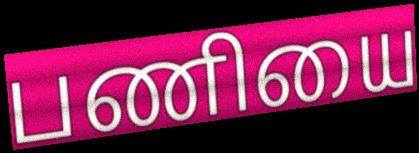
பணியை